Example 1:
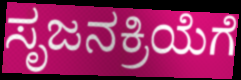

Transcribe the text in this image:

ಸೃಜನಕ್ರಿಯೆಗೆ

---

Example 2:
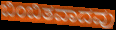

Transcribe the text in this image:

ಬಿಂಬಿತವಾದವು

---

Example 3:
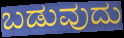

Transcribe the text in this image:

ಬಡುವುದು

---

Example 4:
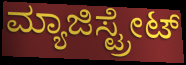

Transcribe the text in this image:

ಮ್ಯಾಜಿಸ್ಟ್ರೇಟ್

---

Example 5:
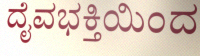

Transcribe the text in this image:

ದೈವಭಕ್ತಿಯಿಂದ